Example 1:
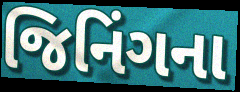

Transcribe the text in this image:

જિનિંગના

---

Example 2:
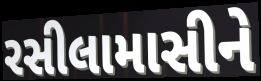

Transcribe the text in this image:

રસીલામાસીને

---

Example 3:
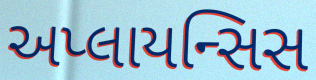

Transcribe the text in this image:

અપ્લાયન્સિસ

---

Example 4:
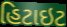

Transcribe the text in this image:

હિટાઇટ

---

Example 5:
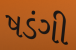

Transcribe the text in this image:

ષડંગી